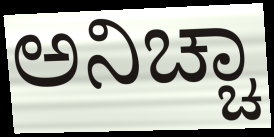
ಅನಿಚ್ಚಾ